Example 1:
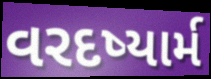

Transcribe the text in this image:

વરદષ્યાર્મ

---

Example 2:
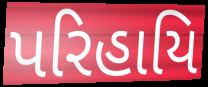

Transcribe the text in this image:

પરિહાયિ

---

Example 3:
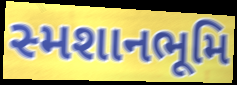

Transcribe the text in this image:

સ્મશાનભૂમિ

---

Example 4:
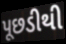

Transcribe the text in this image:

પૂછડીથી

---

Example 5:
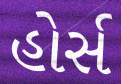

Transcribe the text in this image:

હોર્સ